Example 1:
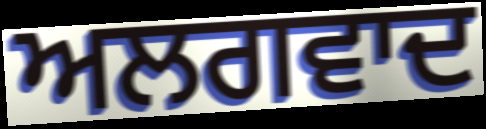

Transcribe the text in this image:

ਅਲਗਵਾਦ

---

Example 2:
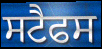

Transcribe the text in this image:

ਸਟੈਫਸ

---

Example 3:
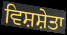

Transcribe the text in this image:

ਵਿਸ਼ਸ਼ੇਤਾ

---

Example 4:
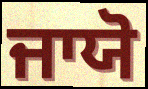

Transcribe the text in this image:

ਜਾਯੋ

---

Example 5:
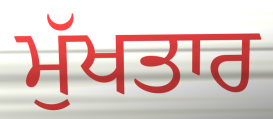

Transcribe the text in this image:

ਮੁੱਖਤਾਰ